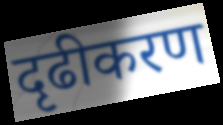
दृढीकरण